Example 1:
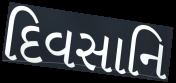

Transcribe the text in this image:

દિવસાનિ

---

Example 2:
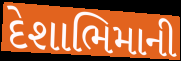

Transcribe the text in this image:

દેશાભિમાની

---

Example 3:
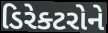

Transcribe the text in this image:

ડિરેક્ટરોને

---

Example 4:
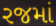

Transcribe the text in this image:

રજમાં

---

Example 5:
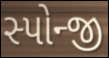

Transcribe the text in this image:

સ્પોન્જી